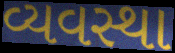
વ્યવસ્થા